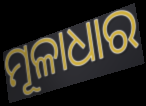
ମୂଳାଧାର